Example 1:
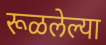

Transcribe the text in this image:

रूळलेल्या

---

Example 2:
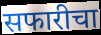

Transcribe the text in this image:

सफारीचा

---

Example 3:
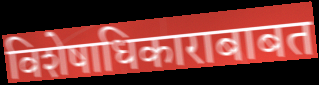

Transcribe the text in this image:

विशेषाधिकाराबाबत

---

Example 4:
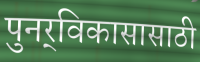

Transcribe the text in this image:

पुनर्विकासासाठी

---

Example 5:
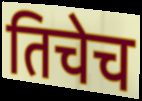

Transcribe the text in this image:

तिचेच